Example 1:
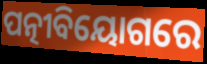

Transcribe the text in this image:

ପତ୍ନୀବିୟୋଗରେ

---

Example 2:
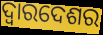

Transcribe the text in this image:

ଦ୍ୱାରଦେଶର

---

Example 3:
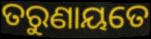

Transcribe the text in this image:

ତରୁଣାୟତେ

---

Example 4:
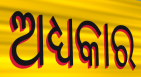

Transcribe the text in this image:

ଅଧ୍ଯକାର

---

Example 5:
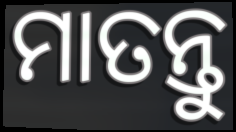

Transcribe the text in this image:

ମାତନ୍ତୁ